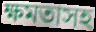
ক্ষমতাসহ